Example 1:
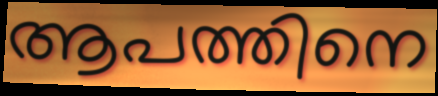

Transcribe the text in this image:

ആപത്തിനെ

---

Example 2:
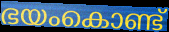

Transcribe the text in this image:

ഭയംകൊണ്ട്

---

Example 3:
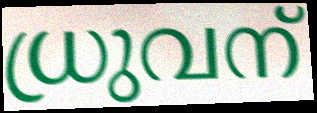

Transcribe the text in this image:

ധ്രുവന്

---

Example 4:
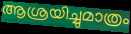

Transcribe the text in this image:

ആശ്രയിച്ചുമാത്രം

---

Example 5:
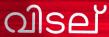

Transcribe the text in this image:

വിടല്